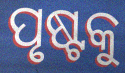
ପୃଷ୍ଟକୁ